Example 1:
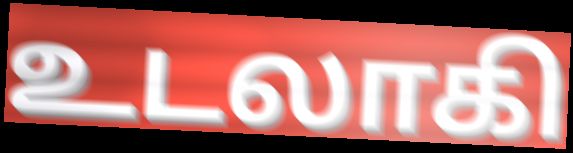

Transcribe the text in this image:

உடலாகி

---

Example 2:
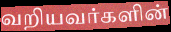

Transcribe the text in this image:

வறியவர்களின்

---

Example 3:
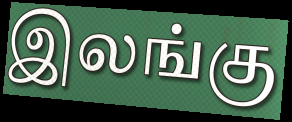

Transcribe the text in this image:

இலங்கு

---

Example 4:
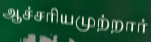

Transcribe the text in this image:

ஆச்சரியமுற்றார்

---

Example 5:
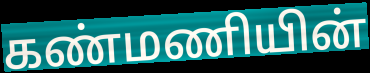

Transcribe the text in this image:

கண்மணியின்